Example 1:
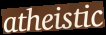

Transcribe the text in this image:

atheistic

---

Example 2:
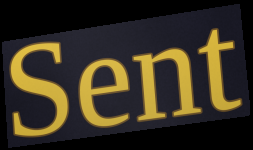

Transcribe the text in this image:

Sent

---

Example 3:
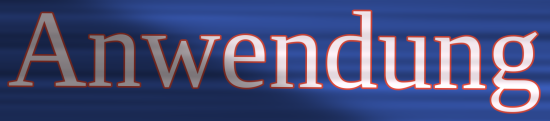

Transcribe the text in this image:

Anwendung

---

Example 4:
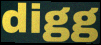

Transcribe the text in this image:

digg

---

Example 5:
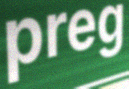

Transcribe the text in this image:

preg